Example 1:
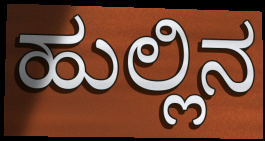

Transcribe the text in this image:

ಹುಲ್ಲಿನ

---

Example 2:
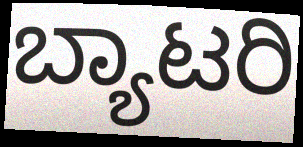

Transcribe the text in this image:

ಬ್ಯಾಟರಿ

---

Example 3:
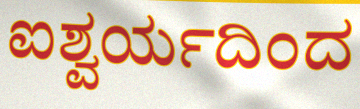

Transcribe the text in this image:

ಐಶ್ವರ್ಯದಿಂದ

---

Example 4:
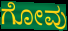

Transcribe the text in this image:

ಗೋವು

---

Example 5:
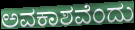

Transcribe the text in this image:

ಅವಕಾಶವೆಂದು